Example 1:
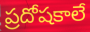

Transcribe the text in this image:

ప్రదోషకాలే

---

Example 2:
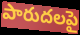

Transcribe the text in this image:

పారుదలపై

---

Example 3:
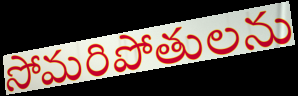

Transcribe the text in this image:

సోమరిపోతులను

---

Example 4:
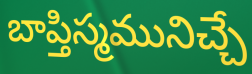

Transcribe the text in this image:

బాప్తిస్మమునిచ్చే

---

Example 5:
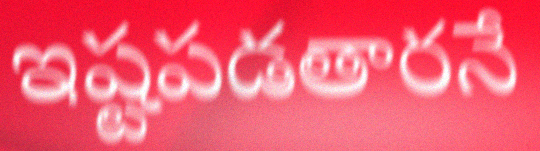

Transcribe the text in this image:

ఇష్టపడతారనే